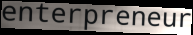
enterpreneur